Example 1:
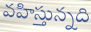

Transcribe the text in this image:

వహిస్తున్నది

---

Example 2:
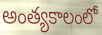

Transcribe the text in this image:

అంత్యకాలంలో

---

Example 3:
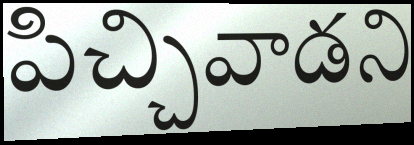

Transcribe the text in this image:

పిచ్చివాడని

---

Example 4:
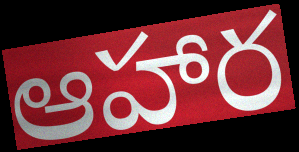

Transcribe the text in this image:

ఆహార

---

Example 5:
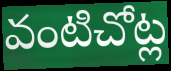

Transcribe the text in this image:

వంటిచోట్ల